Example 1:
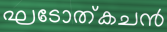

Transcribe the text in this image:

ഘടോത്കചൻ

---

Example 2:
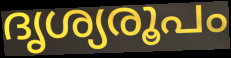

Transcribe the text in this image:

ദൃശ്യരൂപം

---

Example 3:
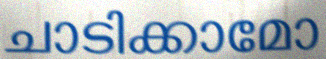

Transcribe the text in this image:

ചാടിക്കാമോ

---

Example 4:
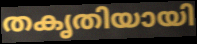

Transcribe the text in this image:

തകൃതിയായി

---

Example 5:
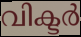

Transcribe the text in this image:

വിക്ടർ